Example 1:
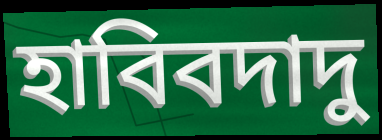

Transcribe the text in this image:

হাবিবদাদু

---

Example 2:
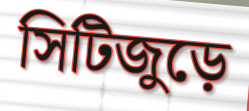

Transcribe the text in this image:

সিটিজুড়ে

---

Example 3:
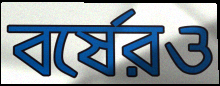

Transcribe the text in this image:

বর্ষেরও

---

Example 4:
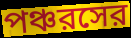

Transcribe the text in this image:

পঞ্চরসের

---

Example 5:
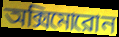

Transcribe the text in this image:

অক্সিমোরোন